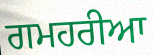
ਗਮਹਰੀਆ